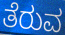
ತೆರುವ